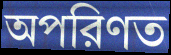
অপরিণত